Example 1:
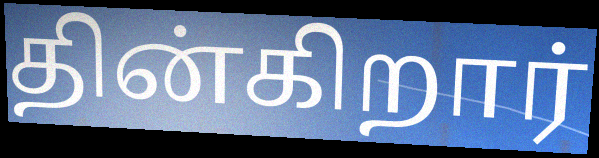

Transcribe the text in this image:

தின்கிறார்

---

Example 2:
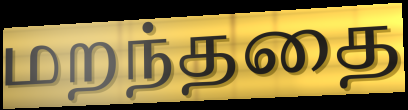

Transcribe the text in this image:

மறந்ததை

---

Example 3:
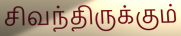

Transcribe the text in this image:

சிவந்திருக்கும்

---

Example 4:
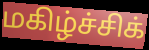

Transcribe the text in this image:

மகிழ்ச்சிக்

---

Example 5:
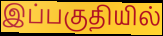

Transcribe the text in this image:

இப்பகுதியில்